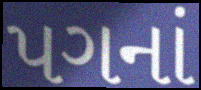
પગનાં